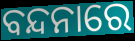
ବନ୍ଦନାରେ